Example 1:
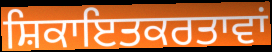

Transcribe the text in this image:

ਸ਼ਿਕਾਇਤਕਰਤਾਵਾਂ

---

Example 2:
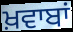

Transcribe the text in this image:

ਖ਼ਵਾਬਾਂ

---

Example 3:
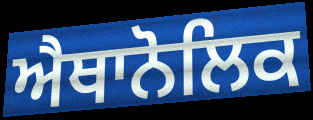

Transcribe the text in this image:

ਐਥਾਨੋਲਿਕ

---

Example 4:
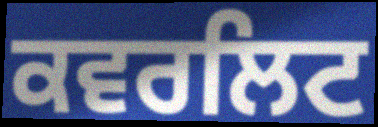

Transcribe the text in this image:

ਕਵਰਲਿਟ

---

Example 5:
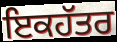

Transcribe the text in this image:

ਇਕਹੱਤਰ